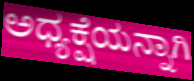
ಅಧ್ಯಕ್ಷೆಯನ್ನಾಗಿ